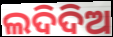
ଲଦିଦିଅ